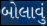
બોલાવું